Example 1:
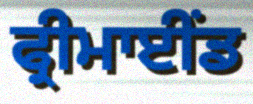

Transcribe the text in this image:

ਫ੍ਰੀਮਾਈਂਡ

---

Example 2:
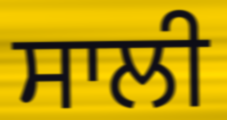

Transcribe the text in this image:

ਸਾਲੀ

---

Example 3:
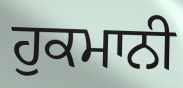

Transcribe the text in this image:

ਹੁਕਮਾਨੀ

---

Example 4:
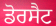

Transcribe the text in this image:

ਡੋਰਸੈਟ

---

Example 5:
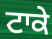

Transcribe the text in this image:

ਟਾਕੇ